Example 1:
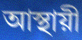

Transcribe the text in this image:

আস্থায়ী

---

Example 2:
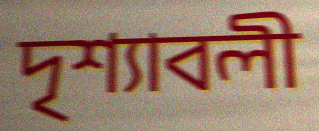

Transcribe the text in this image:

দৃশ্যাবলী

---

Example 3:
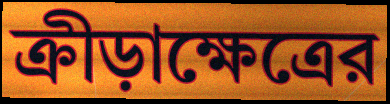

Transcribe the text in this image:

ক্রীড়াক্ষেত্রের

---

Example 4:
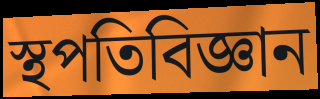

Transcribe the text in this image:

স্থপতিবিজ্ঞান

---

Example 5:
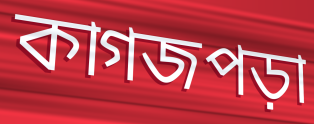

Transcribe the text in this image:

কাগজপড়া